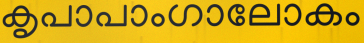
കൃപാപാംഗാലോകം